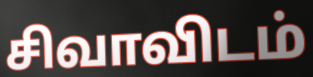
சிவாவிடம்